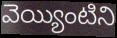
వెయ్యింటిని